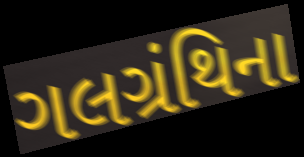
ગલગ્રંથિના